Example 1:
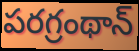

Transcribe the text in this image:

పరగ్రంథాన్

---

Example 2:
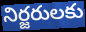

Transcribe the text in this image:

నిర్జరులకు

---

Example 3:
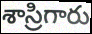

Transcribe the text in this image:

శాస్రిగారు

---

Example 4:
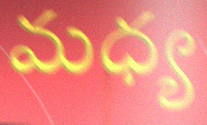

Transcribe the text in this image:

మధ్య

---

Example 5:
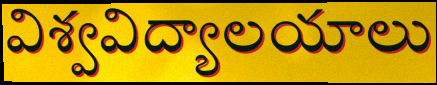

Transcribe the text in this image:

విశ్వవిద్యాలయాలు